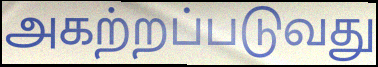
அகற்றப்படுவது